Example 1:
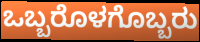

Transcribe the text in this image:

ಒಬ್ಬರೊಳಗೊಬ್ಬರು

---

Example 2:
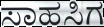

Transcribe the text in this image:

ಸಾಹಸಿಗ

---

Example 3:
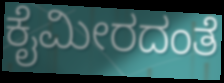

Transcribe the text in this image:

ಕೈಮೀರದಂತೆ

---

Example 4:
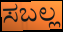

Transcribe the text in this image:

ಸಬಲ್ಲ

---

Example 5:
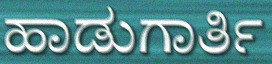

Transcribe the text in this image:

ಹಾಡುಗಾರ್ತಿ